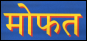
मोफत